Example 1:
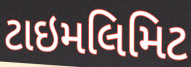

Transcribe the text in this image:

ટાઇમલિમિટ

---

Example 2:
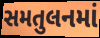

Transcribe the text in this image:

સમતુલનમાં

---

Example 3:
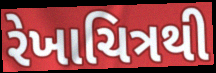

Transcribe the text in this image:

રેખાચિત્રથી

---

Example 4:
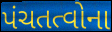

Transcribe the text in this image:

પંચતત્વોના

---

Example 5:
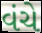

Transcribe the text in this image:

વંચે